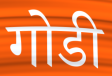
गोडी